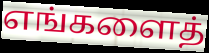
எங்களைத்